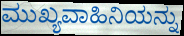
ಮುಖ್ಯವಾಹಿನಿಯನ್ನು